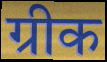
ग्रीक